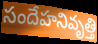
సందేహనివృత్తి